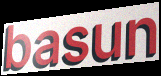
basun